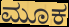
ಮೂಕ